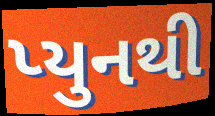
પ્યુનથી